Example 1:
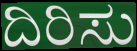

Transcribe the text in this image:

ದಿರಿಸು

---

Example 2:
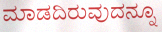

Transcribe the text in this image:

ಮಾಡದಿರುವುದನ್ನೂ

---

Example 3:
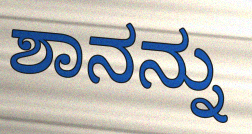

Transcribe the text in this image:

ಶಾನನ್ನು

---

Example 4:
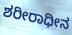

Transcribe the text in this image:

ಶರೀರಾಧೀನ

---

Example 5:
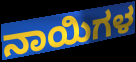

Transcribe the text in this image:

ನಾಯಿಗಳ